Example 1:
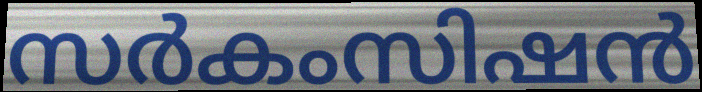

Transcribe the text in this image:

സർകംസിഷൻ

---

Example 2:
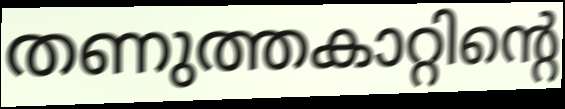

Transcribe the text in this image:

തണുത്തകാറ്റിന്റെ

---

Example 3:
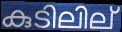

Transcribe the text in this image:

കുടിലില്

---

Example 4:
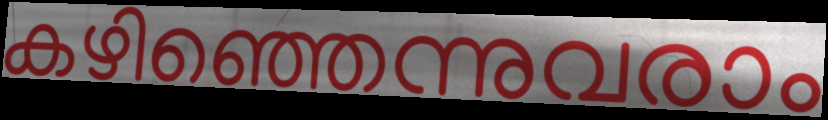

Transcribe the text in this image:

കഴിഞ്ഞെന്നുവരാം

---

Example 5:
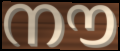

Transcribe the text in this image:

നൗ